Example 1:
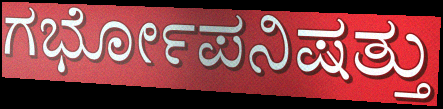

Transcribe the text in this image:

ಗರ್ಭೋಪನಿಷತ್ತು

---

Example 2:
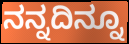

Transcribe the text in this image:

ನನ್ನದಿನ್ನೂ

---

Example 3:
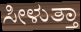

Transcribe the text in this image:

ಸೀಳುತ್ತಾ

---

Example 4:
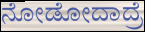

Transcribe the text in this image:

ನೋಡೋದಾದ್ರೆ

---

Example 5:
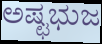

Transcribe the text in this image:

ಅಷ್ಟಭುಜ